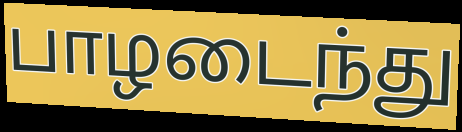
பாழடைந்து